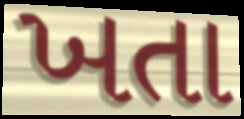
ખતા